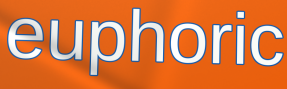
euphoric